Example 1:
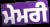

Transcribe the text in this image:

ਮੇਮਰੀ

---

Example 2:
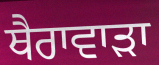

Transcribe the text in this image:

ਥੈਰਾਵਾੜਾ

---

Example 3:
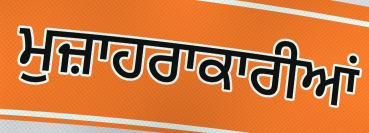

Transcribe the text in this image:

ਮੁਜ਼ਾਹਰਾਕਾਰੀਆਂ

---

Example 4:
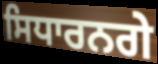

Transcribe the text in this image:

ਸਿਧਾਰਨਗੇ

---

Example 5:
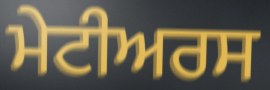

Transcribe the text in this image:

ਮੇਟੀਅਰਸ